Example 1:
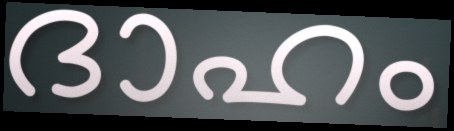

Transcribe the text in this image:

ദാഹം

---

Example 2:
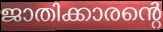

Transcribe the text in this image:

ജാതിക്കാരന്റെ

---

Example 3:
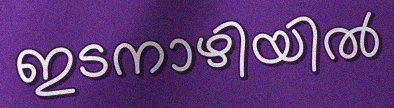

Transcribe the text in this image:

ഇടനാഴിയിൽ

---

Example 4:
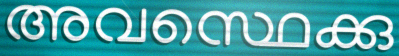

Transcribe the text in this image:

അവസ്ഥെക്കു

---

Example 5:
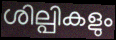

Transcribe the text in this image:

ശില്പികളും